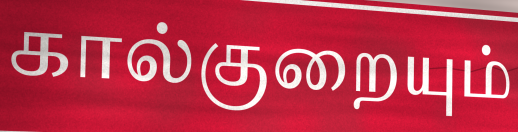
கால்குறையும்